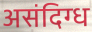
असंदिग्ध